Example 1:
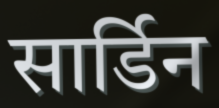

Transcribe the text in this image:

सार्डिन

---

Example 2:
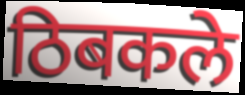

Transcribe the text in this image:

ठिबकले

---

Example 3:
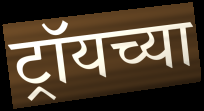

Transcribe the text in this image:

ट्रॉयच्या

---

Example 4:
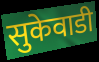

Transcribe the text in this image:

सुकेवाडी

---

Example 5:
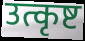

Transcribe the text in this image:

उत्कृष्ट